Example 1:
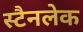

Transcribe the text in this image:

स्टैनलेक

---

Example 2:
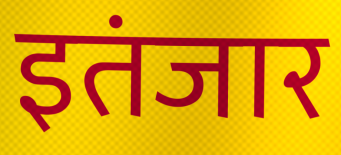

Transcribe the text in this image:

इतंजार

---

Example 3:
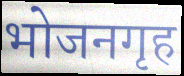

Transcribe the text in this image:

भोजनगृह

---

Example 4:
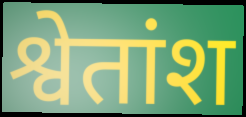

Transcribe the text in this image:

श्वेतांश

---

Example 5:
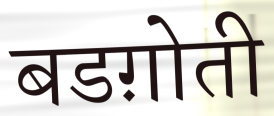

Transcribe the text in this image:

बडग़ोती